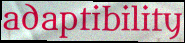
adaptibility